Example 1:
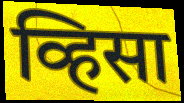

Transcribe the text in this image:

व्हिसा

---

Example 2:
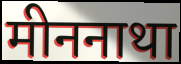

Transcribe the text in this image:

मीननाथा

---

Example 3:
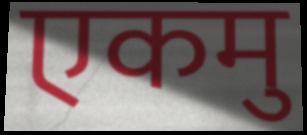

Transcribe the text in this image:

एकमु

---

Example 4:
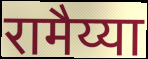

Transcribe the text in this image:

रामैय्या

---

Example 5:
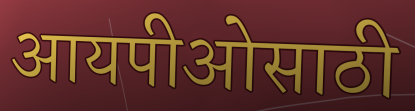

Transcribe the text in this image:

आयपीओसाठी